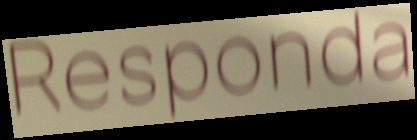
Responda